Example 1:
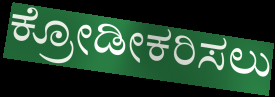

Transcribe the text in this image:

ಕ್ರೋಡೀಕರಿಸಲು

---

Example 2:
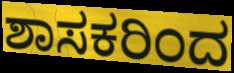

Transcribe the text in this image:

ಶಾಸಕರಿಂದ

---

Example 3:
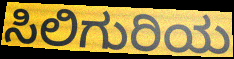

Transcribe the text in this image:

ಸಿಲಿಗುರಿಯ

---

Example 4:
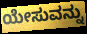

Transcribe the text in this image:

ಯೇಸುವನ್ನು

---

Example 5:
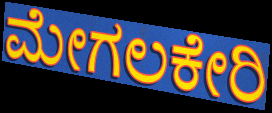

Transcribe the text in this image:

ಮೇಗಲಕೇರಿ